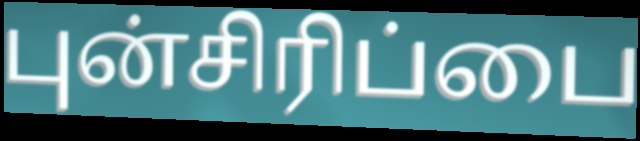
புன்சிரிப்பை